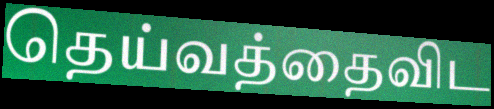
தெய்வத்தைவிட